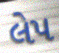
લેપ